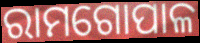
ରାମଗୋପାଳ